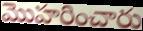
మొహరించారు